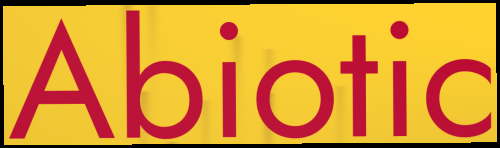
Abiotic